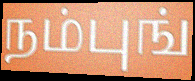
நம்புங்